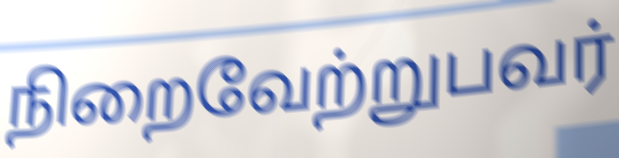
நிறைவேற்றுபவர்